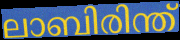
ലാബിരിന്ത്